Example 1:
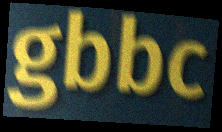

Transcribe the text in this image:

gbbc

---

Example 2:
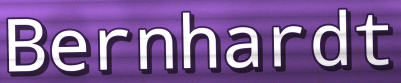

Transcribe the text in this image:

Bernhardt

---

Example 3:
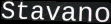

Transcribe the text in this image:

Stavano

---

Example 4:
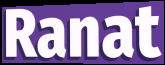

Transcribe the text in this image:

Ranat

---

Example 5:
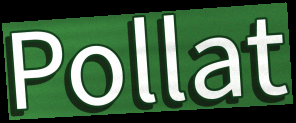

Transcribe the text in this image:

Pollat